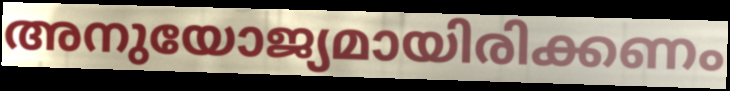
അനുയോജ്യമായിരിക്കണം